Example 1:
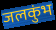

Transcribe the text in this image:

जलकुंभ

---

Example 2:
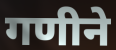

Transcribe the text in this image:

गणीने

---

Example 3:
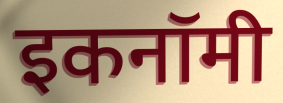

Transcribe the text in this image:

इकनॉमी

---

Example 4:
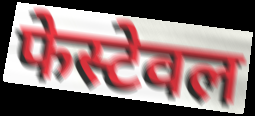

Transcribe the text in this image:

फेस्टेवल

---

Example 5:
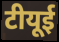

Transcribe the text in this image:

टीयूई